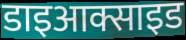
डाइआक्साइड